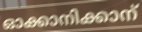
ഓക്കാനിക്കാന്